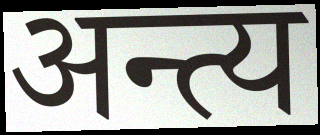
अन्त्य